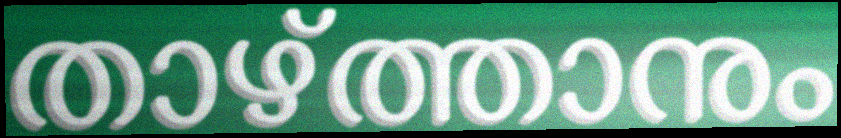
താഴ്ത്താനും